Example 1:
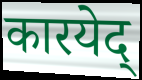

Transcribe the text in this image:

कारयेद्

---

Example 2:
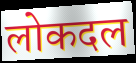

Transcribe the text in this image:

लोकदल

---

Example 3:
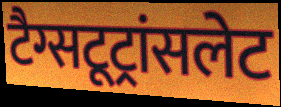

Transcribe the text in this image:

टैग्सटूट्रांसलेट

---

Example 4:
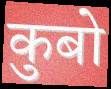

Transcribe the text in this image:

कुबो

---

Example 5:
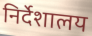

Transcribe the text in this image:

निर्देशालय